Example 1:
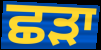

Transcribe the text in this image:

ਛਡ਼ਾ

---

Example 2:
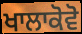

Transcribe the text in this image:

ਖਾਲਾਕੋਵੋ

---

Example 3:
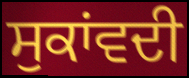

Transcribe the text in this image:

ਸੁਕਾਂਵਦੀ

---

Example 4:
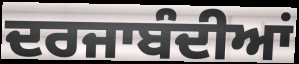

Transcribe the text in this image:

ਦਰਜਾਬੰਦੀਆਂ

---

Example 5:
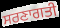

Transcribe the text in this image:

ਸਰਣਾਗਤੀ